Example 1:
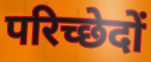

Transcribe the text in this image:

परिच्छेदों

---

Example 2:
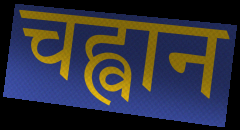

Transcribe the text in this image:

चह्वान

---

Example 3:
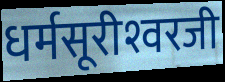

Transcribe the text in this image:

धर्मसूरीश्वरजी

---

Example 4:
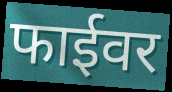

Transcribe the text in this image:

फाईवर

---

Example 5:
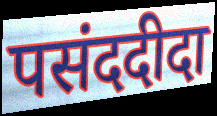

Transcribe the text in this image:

पसंददीदा